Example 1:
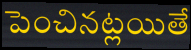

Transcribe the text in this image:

పెంచినట్లయితే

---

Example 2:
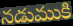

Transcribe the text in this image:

నడుముకి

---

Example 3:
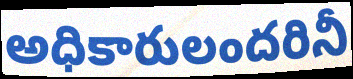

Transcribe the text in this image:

అధికారులందరినీ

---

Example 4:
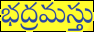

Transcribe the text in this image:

భద్రమస్తు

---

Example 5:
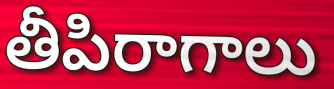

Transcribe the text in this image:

తీపిరాగాలు